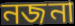
নজনা